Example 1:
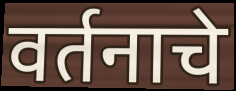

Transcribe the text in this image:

वर्तनाचे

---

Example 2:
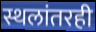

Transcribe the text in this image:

स्थलांतरही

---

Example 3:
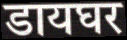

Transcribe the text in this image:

डायघर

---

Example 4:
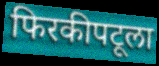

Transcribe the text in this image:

फिरकीपटूला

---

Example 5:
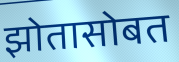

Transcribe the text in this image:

झोतासोबत